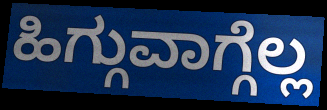
ಹಿಗ್ಗುವಾಗ್ಗೆಲ್ಲ